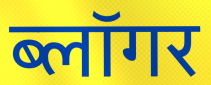
ब्लॉगर